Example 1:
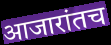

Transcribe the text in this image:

आजारांतच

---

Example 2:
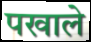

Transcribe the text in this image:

पखाले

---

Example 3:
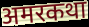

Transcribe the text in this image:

अमरकथा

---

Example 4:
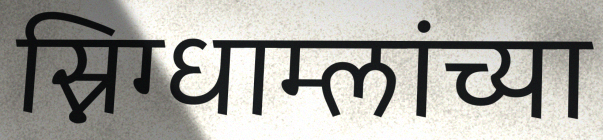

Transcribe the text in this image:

स्निग्धाम्लांच्या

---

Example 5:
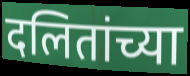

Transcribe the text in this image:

दलितांच्या